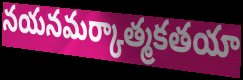
నయనమర్కాత్మకతయా